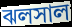
ঝলসাল